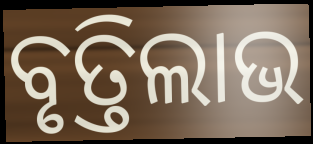
ବୃତ୍ତିଲାଭ